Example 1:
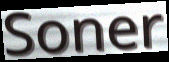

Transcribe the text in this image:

Soner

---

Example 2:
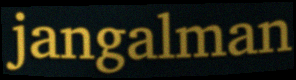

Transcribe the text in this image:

jangalman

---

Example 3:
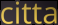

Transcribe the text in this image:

citta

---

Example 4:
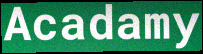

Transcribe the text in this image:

Acadamy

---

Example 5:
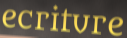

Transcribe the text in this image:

ecriture